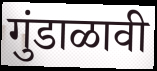
गुंडाळावी